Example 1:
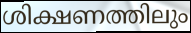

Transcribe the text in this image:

ശിക്ഷണത്തിലും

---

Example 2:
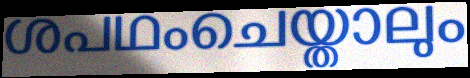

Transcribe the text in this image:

ശപഥംചെയ്താലും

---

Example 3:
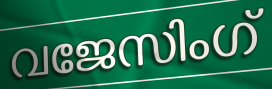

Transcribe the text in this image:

വജേസിംഗ്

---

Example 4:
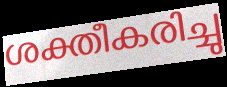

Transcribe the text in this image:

ശക്തീകരിച്ചു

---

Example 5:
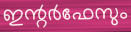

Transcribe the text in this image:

ഇന്റർഫേസും